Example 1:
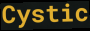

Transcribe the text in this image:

Cystic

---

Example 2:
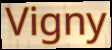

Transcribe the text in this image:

Vigny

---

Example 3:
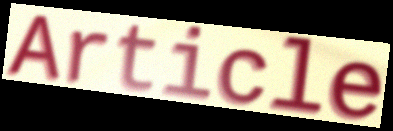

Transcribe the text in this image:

Article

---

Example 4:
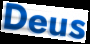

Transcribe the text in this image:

Deus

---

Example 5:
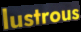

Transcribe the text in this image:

lustrous